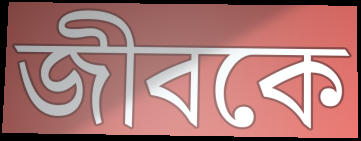
জীবকে